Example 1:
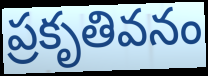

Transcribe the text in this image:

ప్రకృతివనం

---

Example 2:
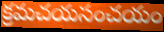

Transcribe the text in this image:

క్రమచయసంచయం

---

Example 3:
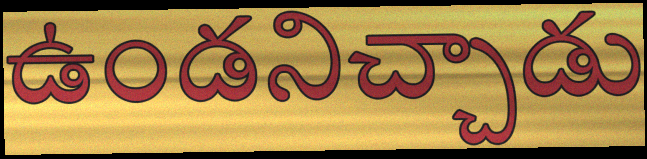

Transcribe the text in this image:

ఉండనిచ్చాడు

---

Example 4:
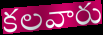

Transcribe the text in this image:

కలవారు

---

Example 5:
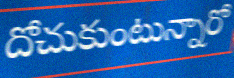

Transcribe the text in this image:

దోచుకుంటున్నారో